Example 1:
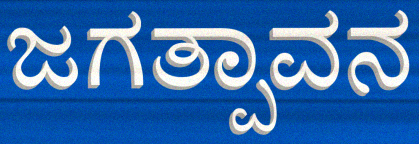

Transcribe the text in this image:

ಜಗತ್ಪಾವನ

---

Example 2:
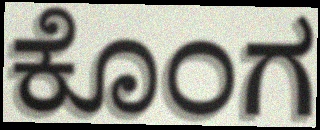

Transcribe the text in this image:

ಕೊಂಗ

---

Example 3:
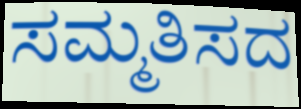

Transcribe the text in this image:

ಸಮ್ಮತಿಸದ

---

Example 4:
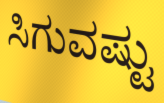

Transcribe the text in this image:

ಸಿಗುವಷ್ಟು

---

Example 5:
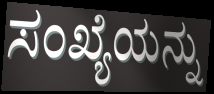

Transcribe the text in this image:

ಸಂಖ್ಯೆಯನ್ನು